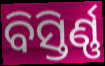
ବିସ୍ତିର୍ଣ୍ଣ